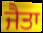
ਜੈਤਾ